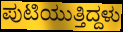
ಪುಟಿಯುತ್ತಿದ್ದಳು